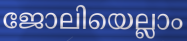
ജോലിയെല്ലാം